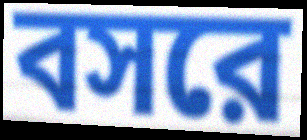
বসরে